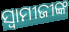
ସ୍ୱାମୀଜୀଙ୍କ